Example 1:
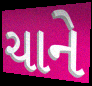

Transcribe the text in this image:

ચાને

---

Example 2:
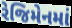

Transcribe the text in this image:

રેજિમેનમાં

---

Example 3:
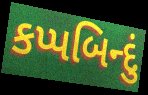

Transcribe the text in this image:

કપ્પબિન્દું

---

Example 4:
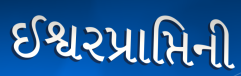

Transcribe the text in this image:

ઈશ્વરપ્રાપ્તિની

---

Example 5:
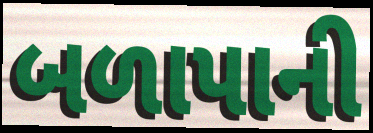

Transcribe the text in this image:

બળાપાની